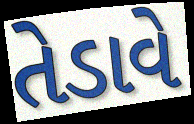
તેડાવે